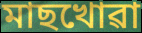
মাছখোৱা